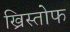
ख्रिस्तोफ